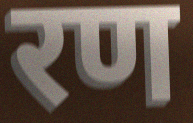
रण